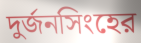
দুর্জনসিংহের